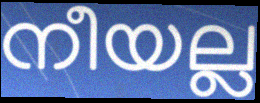
നീയല്ല